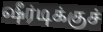
ஷீர்டிக்குச்